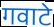
गवाटे